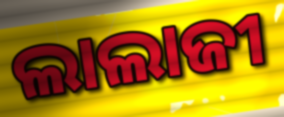
ଲାଲାଜୀ